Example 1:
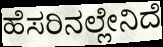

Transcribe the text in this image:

ಹೆಸರಿನಲ್ಲೇನಿದೆ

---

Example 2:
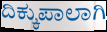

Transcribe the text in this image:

ದಿಕ್ಕುಪಾಲಾಗಿ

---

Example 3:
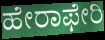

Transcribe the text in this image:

ಹೇರಾಫೇರಿ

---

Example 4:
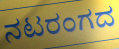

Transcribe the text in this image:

ನಟರಂಗದ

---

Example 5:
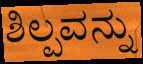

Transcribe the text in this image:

ಶಿಲ್ಪವನ್ನು